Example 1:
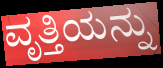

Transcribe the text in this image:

ವೃತ್ತಿಯನ್ನು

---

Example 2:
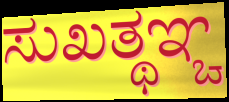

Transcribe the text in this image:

ಸುಖತ್ಥಞ್ಚ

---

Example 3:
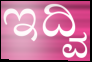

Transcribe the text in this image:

ಇದ್ವಿ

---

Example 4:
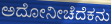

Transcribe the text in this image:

ಅದೋನೀಚೆದೆಕನು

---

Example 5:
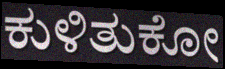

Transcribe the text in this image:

ಕುಳಿತುಕೋ